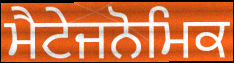
ਮੈਟੇਜਨੋਮਿਕ